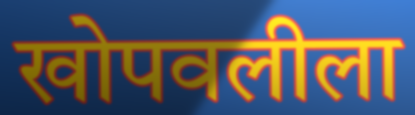
खोपवलीला